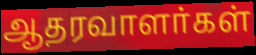
ஆதரவாளர்கள்